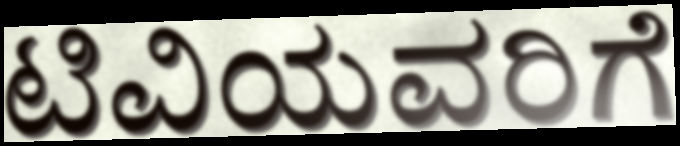
ಟಿವಿಯವರಿಗೆ